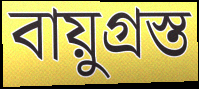
বায়ুগ্রস্ত